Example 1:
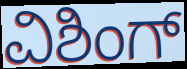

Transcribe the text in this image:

ವಿಶಿಂಗ್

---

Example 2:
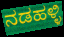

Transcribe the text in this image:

ನಡಹಳ್ಳಿ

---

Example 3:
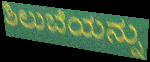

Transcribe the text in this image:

ಶಿಲುಬೆಯನ್ನು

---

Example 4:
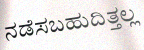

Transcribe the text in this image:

ನಡೆಸಬಹುದಿತ್ತಲ್ಲ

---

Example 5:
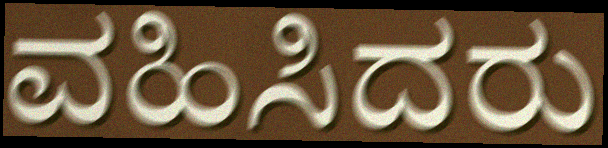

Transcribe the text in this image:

ವಹಿಸಿದರು